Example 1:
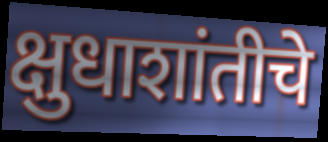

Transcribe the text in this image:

क्षुधाशांतीचे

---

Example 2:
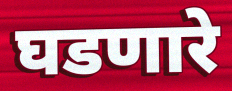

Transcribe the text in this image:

घडणारे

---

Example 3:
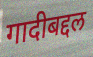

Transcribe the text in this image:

गादीबद्दल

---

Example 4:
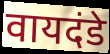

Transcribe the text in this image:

वायदंडे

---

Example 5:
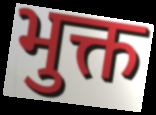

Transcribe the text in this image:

भुक्त